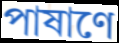
পাষাণে